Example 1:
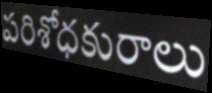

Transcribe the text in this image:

పరిశోధకురాలు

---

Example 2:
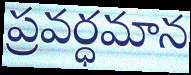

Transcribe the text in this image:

ప్రవర్ధమాన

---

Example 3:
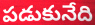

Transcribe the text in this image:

పడుకునేది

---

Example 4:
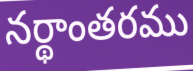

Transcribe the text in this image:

నర్థాంతరము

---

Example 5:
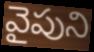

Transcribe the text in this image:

వైపుని